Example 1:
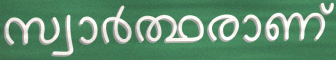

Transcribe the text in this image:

സ്വാർത്ഥരാണ്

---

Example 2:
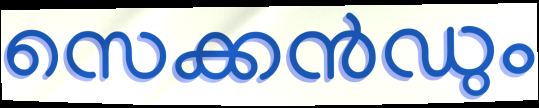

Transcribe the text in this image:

സെക്കൻഡും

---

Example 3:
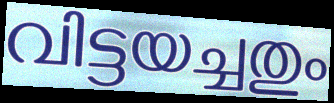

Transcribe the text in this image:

വിട്ടയച്ചതും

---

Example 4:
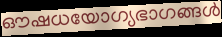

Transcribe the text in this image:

ഔഷധയോഗ്യഭാഗങ്ങൾ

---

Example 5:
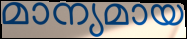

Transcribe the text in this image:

മാന്യമായ